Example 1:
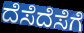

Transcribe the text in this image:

ದೆಸೆದೆಸೆಗೆ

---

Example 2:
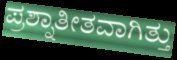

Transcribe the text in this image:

ಪ್ರಶ್ನಾತೀತವಾಗಿತ್ತು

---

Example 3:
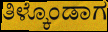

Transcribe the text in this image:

ತಿಳ್ಕೊಂಡಾಗ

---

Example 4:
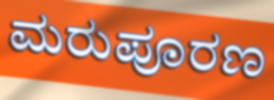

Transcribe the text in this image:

ಮರುಪೂರಣ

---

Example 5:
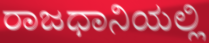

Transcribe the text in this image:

ರಾಜಧಾನಿಯಲ್ಲಿ